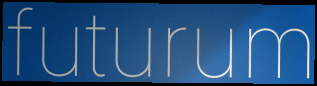
futurum